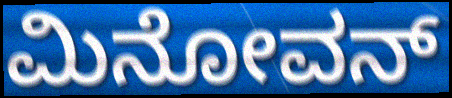
ಮಿನೋವನ್